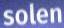
solen